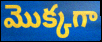
మొక్కగా